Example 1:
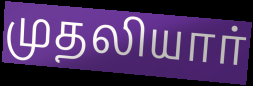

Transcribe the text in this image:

முதலியார்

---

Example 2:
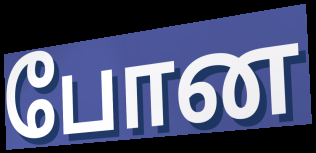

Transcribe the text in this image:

போன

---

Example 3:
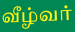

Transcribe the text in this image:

வீழ்வர்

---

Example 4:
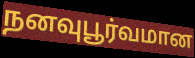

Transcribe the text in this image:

நனவுபூர்வமான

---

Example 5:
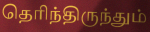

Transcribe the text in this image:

தெரிந்திருந்தும்